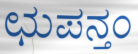
ಛುಪನ್ತಂ